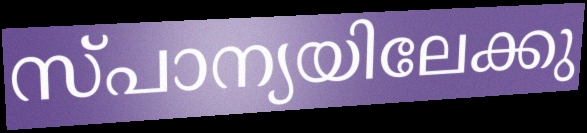
സ്പാന്യയിലേക്കു